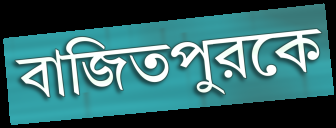
বাজিতপুরকে